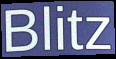
Blitz